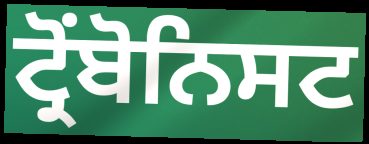
ਟ੍ਰੋਂਬੋਨਿਸਟ